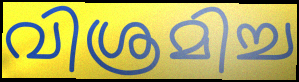
വിശ്രമിച്ച